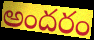
అందరం